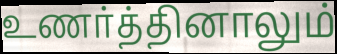
உணர்த்தினாலும்